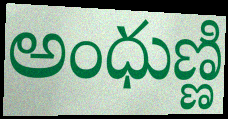
అంధుణ్ణి